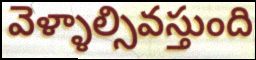
వెళ్ళాల్సివస్తుంది